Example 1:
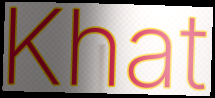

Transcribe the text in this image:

Khat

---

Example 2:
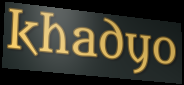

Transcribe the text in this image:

khadyo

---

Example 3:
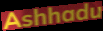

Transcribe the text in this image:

Ashhadu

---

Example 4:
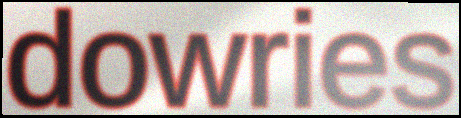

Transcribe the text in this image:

dowries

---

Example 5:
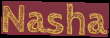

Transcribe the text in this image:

Nasha